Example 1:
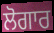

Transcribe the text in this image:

ਲੋਗਾਰ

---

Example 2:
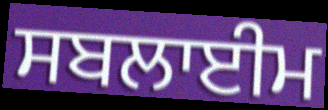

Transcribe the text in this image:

ਸਬਲਾਈਮ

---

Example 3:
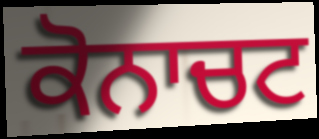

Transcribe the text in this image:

ਕੋਨਾਚਟ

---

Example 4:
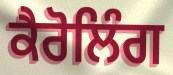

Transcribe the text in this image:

ਕੈਰੋਲਿੰਗ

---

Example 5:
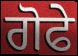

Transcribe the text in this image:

ਗੋਫੇ